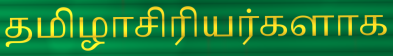
தமிழாசிரியர்களாக